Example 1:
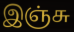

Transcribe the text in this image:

இஞ்சு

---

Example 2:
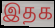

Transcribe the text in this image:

இதக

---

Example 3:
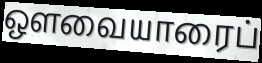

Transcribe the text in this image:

ஔவையாரைப்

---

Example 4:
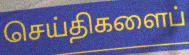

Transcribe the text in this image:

செய்திகளைப்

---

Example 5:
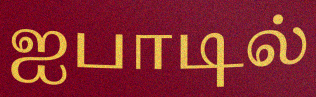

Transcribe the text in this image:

ஐபாடில்